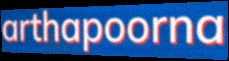
arthapoorna